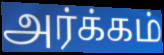
அர்க்கம்